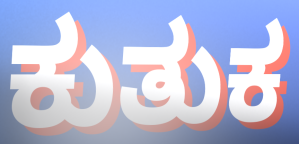
ಕುತುಕ